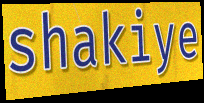
shakiye